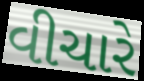
વીચારે